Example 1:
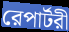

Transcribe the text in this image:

রেপার্টরী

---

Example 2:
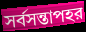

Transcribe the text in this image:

সর্বসন্তাপহর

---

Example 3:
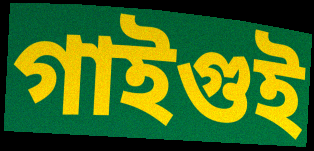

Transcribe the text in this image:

গাইগুই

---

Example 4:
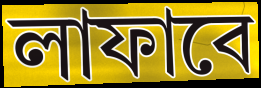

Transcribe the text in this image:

লাফাবে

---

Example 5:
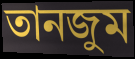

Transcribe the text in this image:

তানজুম